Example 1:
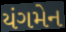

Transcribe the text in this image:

યંગમેન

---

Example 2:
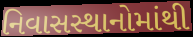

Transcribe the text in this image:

નિવાસસ્થાનોમાંથી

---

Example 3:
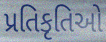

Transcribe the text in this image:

પ્રતિકૃતિઓ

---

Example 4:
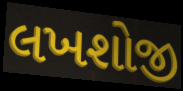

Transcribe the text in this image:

લખશોજી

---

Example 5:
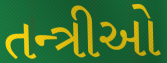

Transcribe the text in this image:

તન્ત્રીઓ